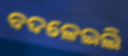
ବଦଳେଇଲି